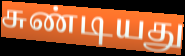
சுண்டியது